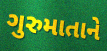
ગુરુમાતાને